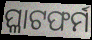
ପ୍ଳାଟଫର୍ମ